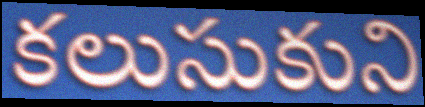
కలుసుకుని